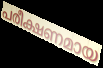
പരീക്ഷണമായ